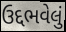
ઉદ્દભવેલું